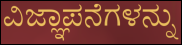
ವಿಜ್ಞಾಪನೆಗಳನ್ನು